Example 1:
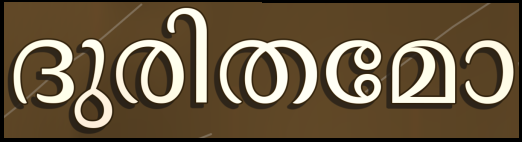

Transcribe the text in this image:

ദുരിതമോ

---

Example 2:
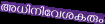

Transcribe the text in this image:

അധിനിവേശകരും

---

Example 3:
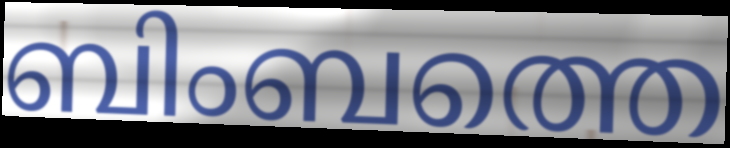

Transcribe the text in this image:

ബിംബത്തെ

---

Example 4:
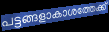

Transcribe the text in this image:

പട്ടങ്ങളാകാശത്തേക്ക്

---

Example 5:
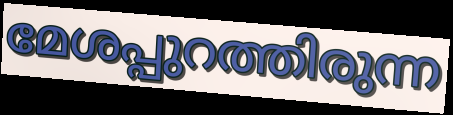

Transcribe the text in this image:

മേശപ്പുറത്തിരുന്ന